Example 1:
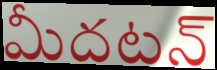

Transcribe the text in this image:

మీదటన్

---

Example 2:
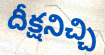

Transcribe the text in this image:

దీక్షనిచ్చి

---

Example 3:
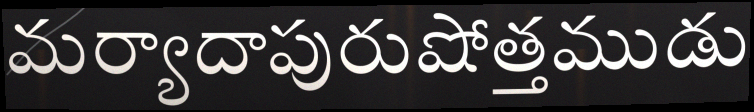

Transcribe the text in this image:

మర్యాదాపురుషోత్తముడు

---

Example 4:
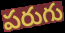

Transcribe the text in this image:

పరుగు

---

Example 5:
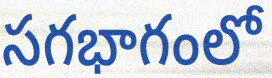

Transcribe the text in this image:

సగభాగంలో